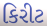
કિરીટ